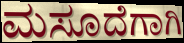
ಮಸೂದೆಗಾಗಿ